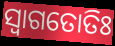
ସ୍ଵାଗତୋତିଃ